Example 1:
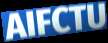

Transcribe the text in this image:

AIFCTU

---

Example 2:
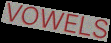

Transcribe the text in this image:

VOWELS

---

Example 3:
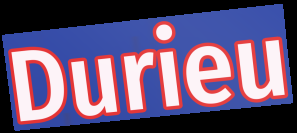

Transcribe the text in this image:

Durieu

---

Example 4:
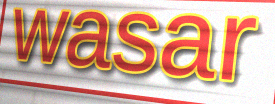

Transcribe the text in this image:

wasar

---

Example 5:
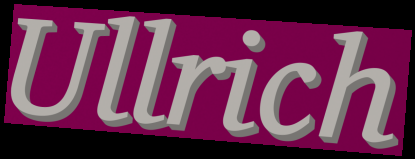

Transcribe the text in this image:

Ullrich